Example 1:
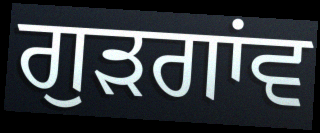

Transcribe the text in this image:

ਗੁਡ਼ਗਾਂਵ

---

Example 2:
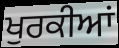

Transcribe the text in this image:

ਖੁਰਕੀਆਂ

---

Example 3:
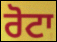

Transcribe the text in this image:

ਰੋਟਾ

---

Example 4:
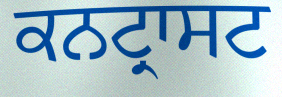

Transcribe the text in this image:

ਕਨਟ੍ਰਾਸਟ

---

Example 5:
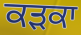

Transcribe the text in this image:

ਕੜਕਾ